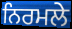
ਨਿਰਮਲੇ